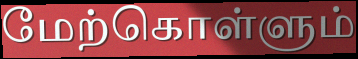
மேற்கொள்ளும்